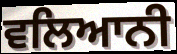
ਵਲਿਆਨੀ